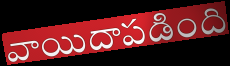
వాయిదాపడింది